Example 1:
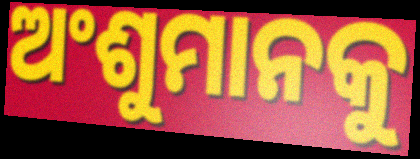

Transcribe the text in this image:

ଅଂଶୁମାନକୁ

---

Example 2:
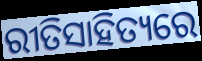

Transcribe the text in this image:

ରୀତିସାହିତ୍ୟରେ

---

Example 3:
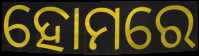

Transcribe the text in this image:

ହୋମରେ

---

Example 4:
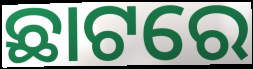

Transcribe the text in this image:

ଛାଟରେ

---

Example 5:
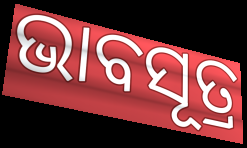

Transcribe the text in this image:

ଭାବସୂତ୍ର